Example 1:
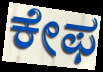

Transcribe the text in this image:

ಕೇಫ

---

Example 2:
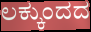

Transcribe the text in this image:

ಲಕ್ಕುಂದದ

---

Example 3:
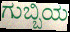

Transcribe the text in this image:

ಗುಬ್ಬಿಯ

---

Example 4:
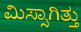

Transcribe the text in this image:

ಮಿಸ್ಸಾಗಿತ್ತು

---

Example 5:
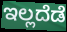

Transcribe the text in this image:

ಇಲ್ಲದೆಡೆ